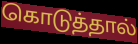
கொடுத்தால்